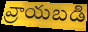
వ్రాయబడి